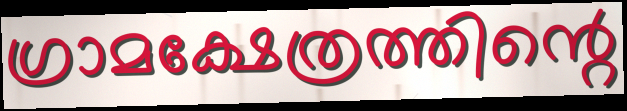
ഗ്രാമക്ഷേത്രത്തിന്റെ